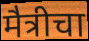
मैत्रीचा